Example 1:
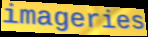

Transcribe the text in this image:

imageries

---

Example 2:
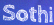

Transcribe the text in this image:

Sothi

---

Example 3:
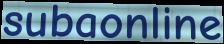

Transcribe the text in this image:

subaonline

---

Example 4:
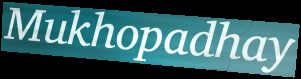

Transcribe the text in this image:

Mukhopadhay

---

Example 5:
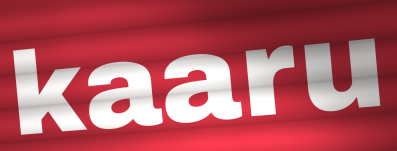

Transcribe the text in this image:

kaaru